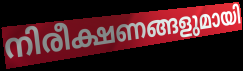
നിരീക്ഷണങ്ങളുമായി